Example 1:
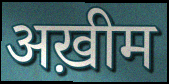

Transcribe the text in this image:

अख़ीम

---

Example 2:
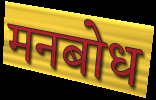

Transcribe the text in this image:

मनबोध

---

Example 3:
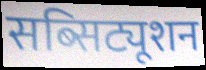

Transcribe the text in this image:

सब्सिट्यूशन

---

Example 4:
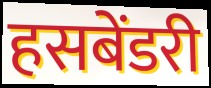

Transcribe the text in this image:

हसबेंडरी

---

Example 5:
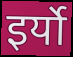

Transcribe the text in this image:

इर्यो